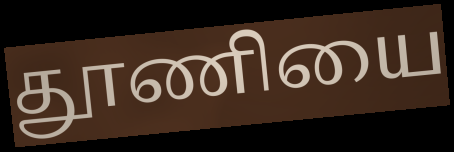
தூணியை